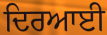
ਦਿਰਆਈ